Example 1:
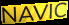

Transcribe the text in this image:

NAVIC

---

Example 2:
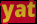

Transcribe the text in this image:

yat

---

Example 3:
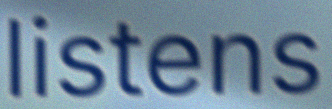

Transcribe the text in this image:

listens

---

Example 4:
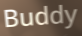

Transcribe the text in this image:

Buddy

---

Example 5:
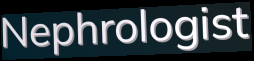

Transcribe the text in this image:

Nephrologist